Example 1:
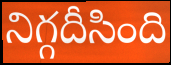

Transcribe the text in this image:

నిగ్గదీసింది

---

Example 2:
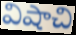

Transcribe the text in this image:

విషాచి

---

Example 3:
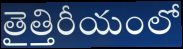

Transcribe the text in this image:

తైత్తిరీయంలో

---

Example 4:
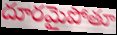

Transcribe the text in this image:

దూరమైపోతూ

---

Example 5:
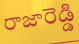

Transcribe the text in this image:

రాజారెడ్డి